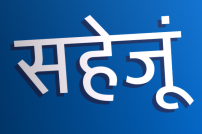
सहेजूं